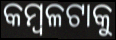
କମ୍ବଳଟାକୁ